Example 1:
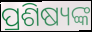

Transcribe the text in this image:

ପ୍ରଶିଷ୍ୟଙ୍କ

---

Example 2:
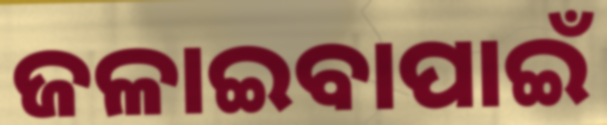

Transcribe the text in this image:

ଜଳାଇବାପାଇଁ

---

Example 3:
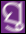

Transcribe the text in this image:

ସ୍ତ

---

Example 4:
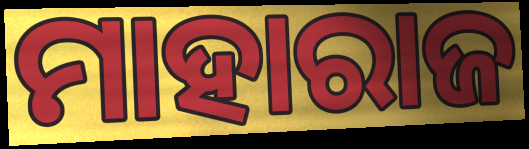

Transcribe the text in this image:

ମାହାରାଜ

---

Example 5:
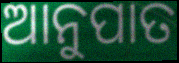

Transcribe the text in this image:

ଆନୁପାତ